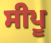
ਸੀਪੂ